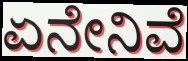
ಏನೇನಿವೆ